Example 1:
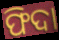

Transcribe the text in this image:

ଫିଦା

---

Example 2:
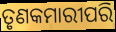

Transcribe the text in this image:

ତୃଣକମାରୀପରି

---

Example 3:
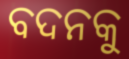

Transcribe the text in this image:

ବଦନକୁ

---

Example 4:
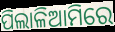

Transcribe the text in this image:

ପିଲାଳିଆମିରେ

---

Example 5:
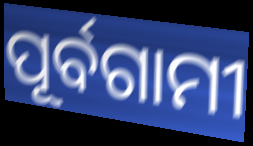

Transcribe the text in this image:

ପୂର୍ବଗାମୀ